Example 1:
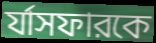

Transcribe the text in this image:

র্যাসফারকে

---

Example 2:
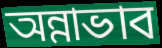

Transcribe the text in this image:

অন্নাভাব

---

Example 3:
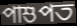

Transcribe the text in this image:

পাশুপত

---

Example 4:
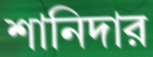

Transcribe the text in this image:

শানিদার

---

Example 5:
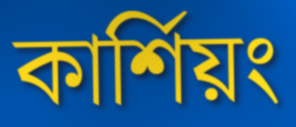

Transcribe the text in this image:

কার্শিয়ং